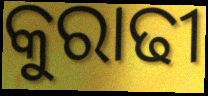
କୁରାଢୀ